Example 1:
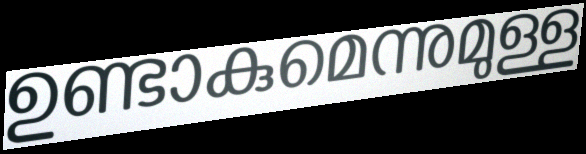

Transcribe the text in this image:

ഉണ്ടാകുമെന്നുമുള്ള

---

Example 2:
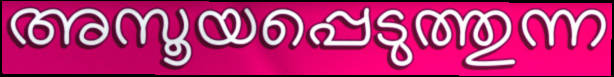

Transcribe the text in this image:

അസൂയപ്പെടുത്തുന്ന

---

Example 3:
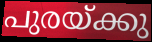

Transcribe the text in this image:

പുരയ്ക്കു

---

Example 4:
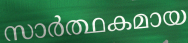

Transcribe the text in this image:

സാർത്ഥകമായ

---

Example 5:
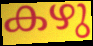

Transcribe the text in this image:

കഴു